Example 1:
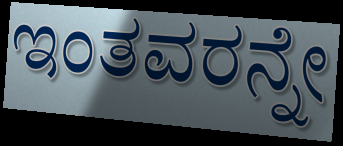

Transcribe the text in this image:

ಇಂತವರನ್ನೇ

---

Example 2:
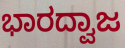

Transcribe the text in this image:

ಭಾರದ್ವಾಜ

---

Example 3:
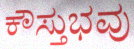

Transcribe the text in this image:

ಕೌಸ್ತುಭವು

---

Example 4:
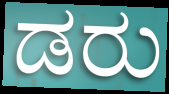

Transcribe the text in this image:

ಡರು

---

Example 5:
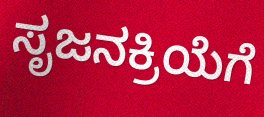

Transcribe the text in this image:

ಸೃಜನಕ್ರಿಯೆಗೆ